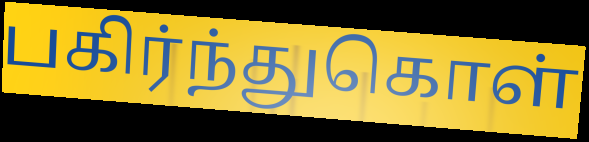
பகிர்ந்துகொள்